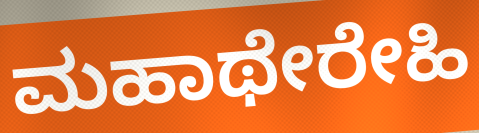
ಮಹಾಥೇರೇಹಿ